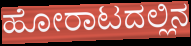
ಹೋರಾಟದಲ್ಲಿನ